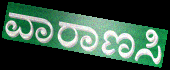
ವಾರಾಣಸಿ